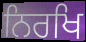
ਨਿਰਖਿ